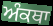
ਅੰਕਥਾ